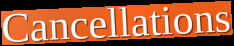
Cancellations